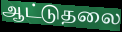
ஆட்டுதலை